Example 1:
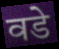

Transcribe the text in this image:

वडे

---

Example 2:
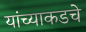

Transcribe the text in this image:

यांच्याकडचे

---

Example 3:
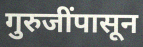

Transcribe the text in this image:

गुरुजींपासून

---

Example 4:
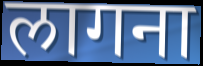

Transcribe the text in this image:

लागना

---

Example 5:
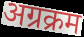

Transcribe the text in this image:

अग्रक्रम